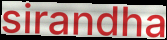
sirandha